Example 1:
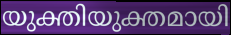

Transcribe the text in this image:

യുക്തിയുക്തമായി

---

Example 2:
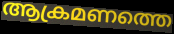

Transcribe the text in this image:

ആക്രമണത്തെ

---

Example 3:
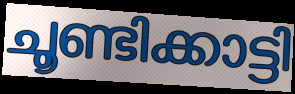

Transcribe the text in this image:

ചൂണ്ടിക്കാട്ടി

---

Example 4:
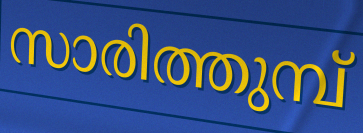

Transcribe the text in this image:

സാരിത്തുമ്പ്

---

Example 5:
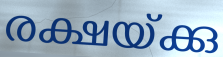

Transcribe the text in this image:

രക്ഷയ്‌ക്കു